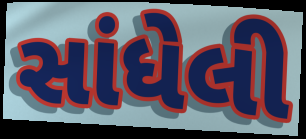
સાંધેલી